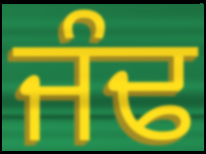
ਜੰਢ